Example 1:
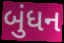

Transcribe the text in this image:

બુંધન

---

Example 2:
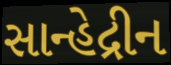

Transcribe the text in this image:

સાન્હેદ્રીન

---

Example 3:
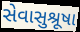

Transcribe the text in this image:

સેવાસુશ્રૂષા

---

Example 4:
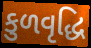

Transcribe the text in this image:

કુળવૃદ્ધિ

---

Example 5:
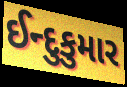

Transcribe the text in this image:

ઈન્દુકુમાર